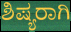
ಶಿಷ್ಯರಾಗಿ